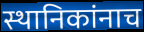
स्थानिकांनाच